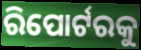
ରିପୋର୍ଟରକୁ